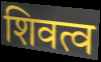
शिवत्व